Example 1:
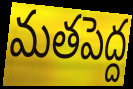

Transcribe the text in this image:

మతపెద్ద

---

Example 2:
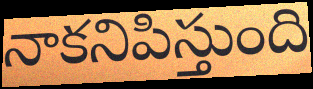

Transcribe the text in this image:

నాకనిపిస్తుంది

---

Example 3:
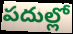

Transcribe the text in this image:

పదుల్లో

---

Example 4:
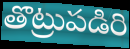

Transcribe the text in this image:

తొట్రుపడిరి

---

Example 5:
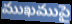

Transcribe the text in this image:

ముఖముపై